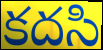
కదసి